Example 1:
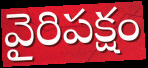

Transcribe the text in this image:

వైరిపక్షం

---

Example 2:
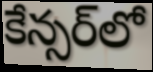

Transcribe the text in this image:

కేన్సర్‌లో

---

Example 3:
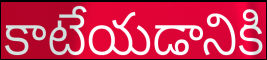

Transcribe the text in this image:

కాటేయడానికి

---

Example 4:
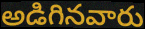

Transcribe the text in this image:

అడిగినవారు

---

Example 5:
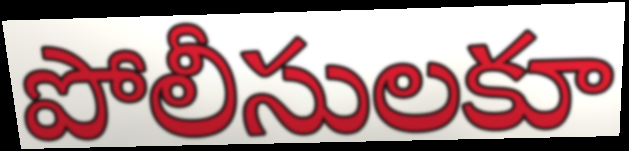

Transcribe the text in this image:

పోలీసులకూ